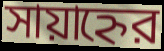
সায়াহ্নের